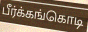
பீர்க்கங்கொடி